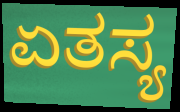
ಏತಸ್ಯ